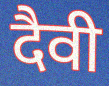
दैवी